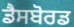
ਡੈਸਬੋਰਡ